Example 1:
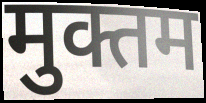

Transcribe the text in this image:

मुक्तम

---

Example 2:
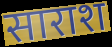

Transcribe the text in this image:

साराश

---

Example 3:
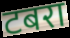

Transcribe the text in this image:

टबरा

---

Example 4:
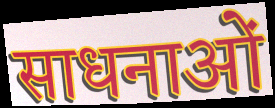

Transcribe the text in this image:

साधनाओं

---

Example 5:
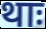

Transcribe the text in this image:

थाः